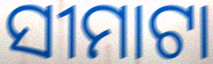
ସୀମାଟା